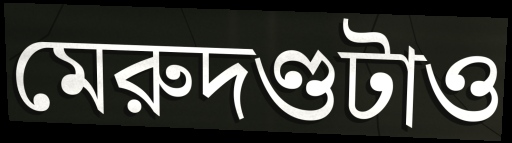
মেরুদণ্ডটাও